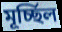
মূর্চ্ছিল